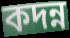
কদন্ন